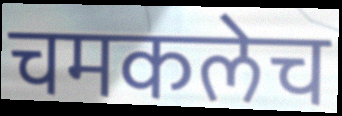
चमकलेच